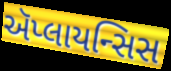
ઍપ્લાયન્સિસ